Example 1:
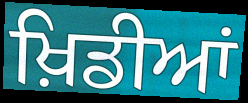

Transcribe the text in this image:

ਖ਼ਿਡੀਆਂ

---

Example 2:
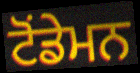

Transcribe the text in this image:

ਟੋਂਡੇਮਨ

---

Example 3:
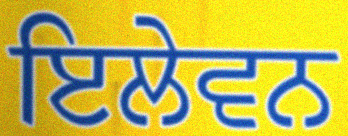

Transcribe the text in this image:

ਇਲੇਵਨ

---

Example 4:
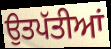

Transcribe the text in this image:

ਉਤਪੱਤੀਆਂ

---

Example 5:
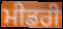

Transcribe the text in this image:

ਮੀਡਰੀ